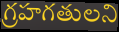
గ్రహగతులని